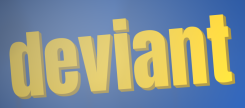
deviant